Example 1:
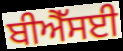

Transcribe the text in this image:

ਬੀਐੱਸਈ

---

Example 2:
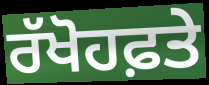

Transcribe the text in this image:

ਰੱਖੋਹਫ਼ਤੇ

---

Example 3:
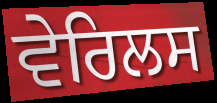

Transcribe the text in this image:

ਵੇਰਿਲਸ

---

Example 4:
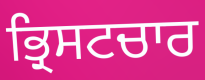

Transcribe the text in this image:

ਭ੍ਰਿਸਟਚਾਰ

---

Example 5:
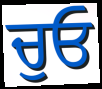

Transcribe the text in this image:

ਚੁਓ